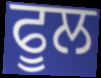
ਫੂਲ